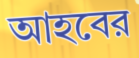
আহবের